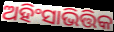
ଅହିଂସାଭିତ୍ତିକ